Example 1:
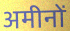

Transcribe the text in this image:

अमीनों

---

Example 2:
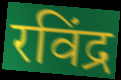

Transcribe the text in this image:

रविंद्र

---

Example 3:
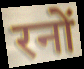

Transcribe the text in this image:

रनों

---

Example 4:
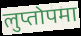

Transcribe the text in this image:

लुप्तोपमा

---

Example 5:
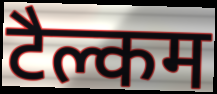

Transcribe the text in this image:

टैल्कम